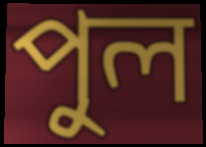
পুল